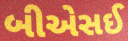
બીએસઈ